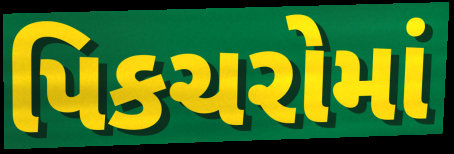
પિકચરોમાં